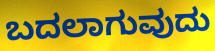
ಬದಲಾಗುವುದು